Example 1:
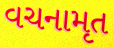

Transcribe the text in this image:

વચનામૃત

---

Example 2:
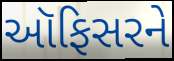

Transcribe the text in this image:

ઑફિસરને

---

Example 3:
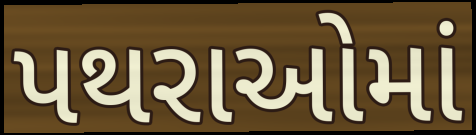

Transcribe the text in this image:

પથરાઓમાં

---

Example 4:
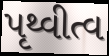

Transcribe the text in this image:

પૃથ્વીત્વ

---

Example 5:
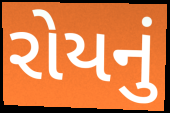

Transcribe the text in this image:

રોયનું